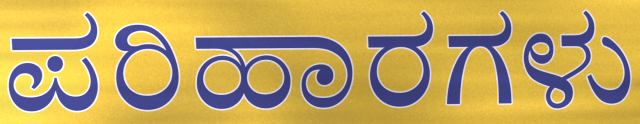
ಪರಿಹಾರಗಳು